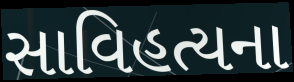
સાવિહત્યના